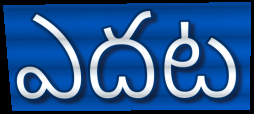
ఎదట